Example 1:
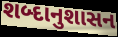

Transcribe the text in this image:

શબ્દાનુશાસન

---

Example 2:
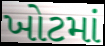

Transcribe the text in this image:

ખોટમાં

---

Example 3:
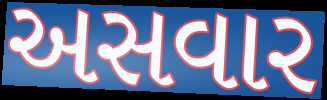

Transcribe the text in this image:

અસવાર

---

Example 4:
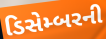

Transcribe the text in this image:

ડિસેમ્બરની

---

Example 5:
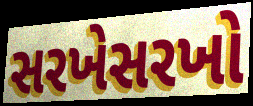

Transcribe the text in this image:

સરખેસરખો